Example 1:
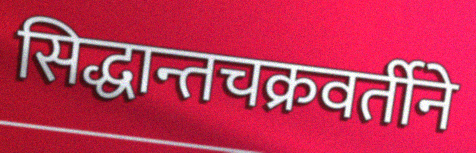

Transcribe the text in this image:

सिद्धान्तचक्रवर्तीने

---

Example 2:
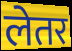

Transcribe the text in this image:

लेतर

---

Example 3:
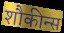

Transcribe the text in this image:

शौकीन्स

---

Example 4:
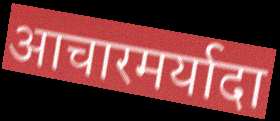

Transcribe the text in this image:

आचारमर्यादा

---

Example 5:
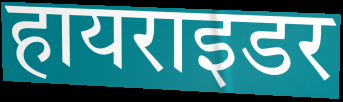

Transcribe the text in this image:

हायराइडर